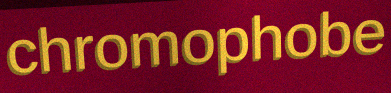
chromophobe